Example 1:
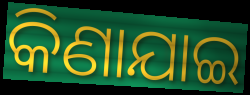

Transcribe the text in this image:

କିଣାଯାଇ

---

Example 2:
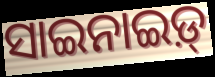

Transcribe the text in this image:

ସାଇନାଇଡ଼୍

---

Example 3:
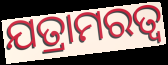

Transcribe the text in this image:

ଯତ୍ରାମରତ୍ଵ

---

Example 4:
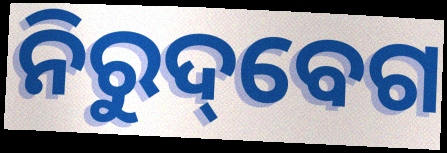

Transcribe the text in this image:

ନିରୁଦ୍‌ବେଗ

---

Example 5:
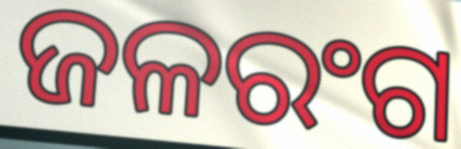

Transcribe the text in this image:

ଜଳରଂଗ